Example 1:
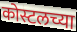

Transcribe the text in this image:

कोस्टलच्या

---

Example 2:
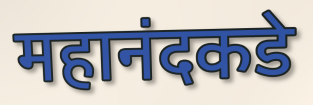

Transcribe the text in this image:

महानंदकडे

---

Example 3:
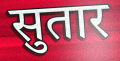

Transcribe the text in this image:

सुतार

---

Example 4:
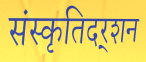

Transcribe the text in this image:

संस्कृतिदर्शन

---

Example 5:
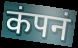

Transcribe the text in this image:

कंपनं